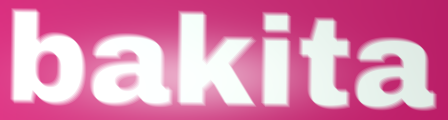
bakita